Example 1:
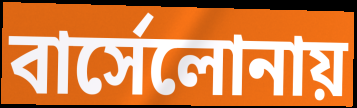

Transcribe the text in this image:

বার্সেলোনায়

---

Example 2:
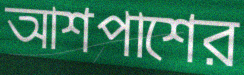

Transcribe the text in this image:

আশপাশের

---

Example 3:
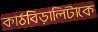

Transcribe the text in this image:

কাঠবিড়ালিটাকে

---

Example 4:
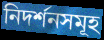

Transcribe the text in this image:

নিদর্শনসমূহ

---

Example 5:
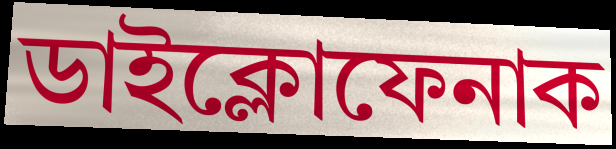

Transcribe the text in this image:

ডাইক্লোফেনাক